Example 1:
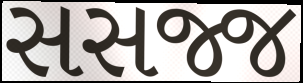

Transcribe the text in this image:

સસજ્જ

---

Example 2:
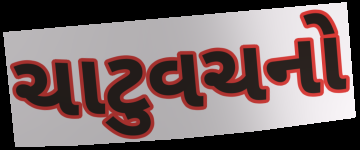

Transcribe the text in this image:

ચાટુવચનો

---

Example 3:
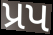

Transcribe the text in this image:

પ્રપ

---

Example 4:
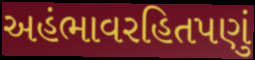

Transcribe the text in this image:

અહંભાવરહિતપણું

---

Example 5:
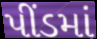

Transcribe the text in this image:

પીંડમાં